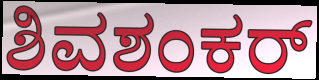
ಶಿವಶಂಕರ್